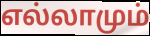
எல்லாமும்